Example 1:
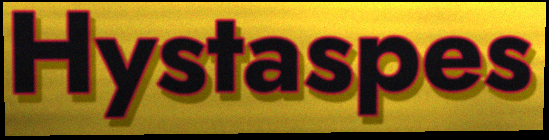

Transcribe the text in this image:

Hystaspes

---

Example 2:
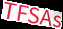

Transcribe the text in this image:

TFSAs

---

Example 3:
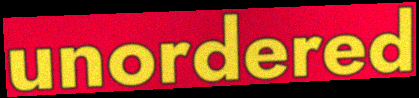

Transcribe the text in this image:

unordered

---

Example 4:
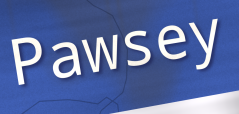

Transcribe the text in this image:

Pawsey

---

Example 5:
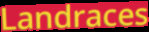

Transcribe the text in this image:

Landraces